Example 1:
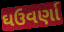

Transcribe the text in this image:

ઘઉવર્ણા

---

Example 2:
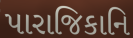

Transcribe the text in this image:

પારાજિકાનિ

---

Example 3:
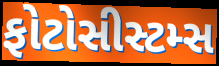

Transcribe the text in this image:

ફોટોસીસ્ટમ્સ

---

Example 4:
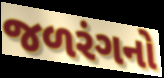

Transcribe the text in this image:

જળરંગનો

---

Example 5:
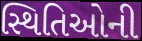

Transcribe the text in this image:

સ્થિતિઓની